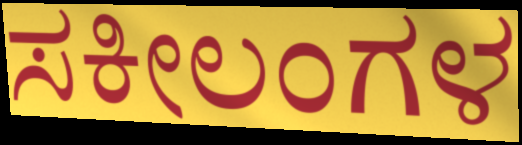
ಸಕೀಲಂಗಳ